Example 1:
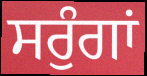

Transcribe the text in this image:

ਸਰੁੰਗਾਂ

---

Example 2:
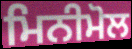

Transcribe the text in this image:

ਮਿਨੀਮੋਲ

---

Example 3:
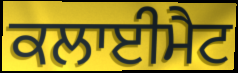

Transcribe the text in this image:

ਕਲਾਈਮੈਟ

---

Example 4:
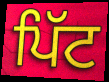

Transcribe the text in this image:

ਪਿੱਟ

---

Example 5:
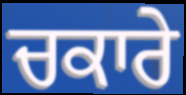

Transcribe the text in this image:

ਚਕਾਰੇ